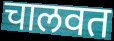
चालवत